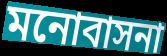
মনোবাসনা